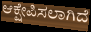
ಆಕ್ಷೇಪಿಸಲಾಗಿದೆ